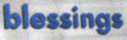
blessings